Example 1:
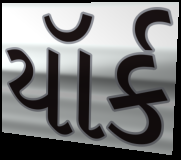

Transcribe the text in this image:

યૉર્ક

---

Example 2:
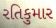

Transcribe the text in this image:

રતિકુમાર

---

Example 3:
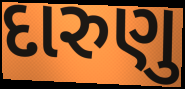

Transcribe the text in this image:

દારુણુ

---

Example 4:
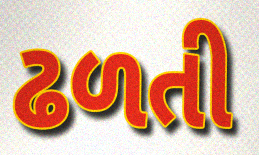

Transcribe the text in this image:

ઢળતી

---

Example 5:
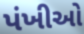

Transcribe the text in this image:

પંખીઓ